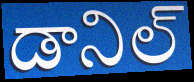
డానిల్